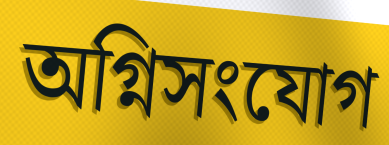
অগ্নিসংযোগ